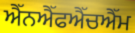
ਐੱਨਐੱਫਐੱਚਐੱਮ